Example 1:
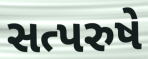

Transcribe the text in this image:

સત્પરુષે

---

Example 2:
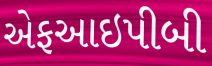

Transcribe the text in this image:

એફઆઇપીબી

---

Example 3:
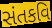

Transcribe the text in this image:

સંતકવિ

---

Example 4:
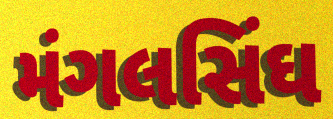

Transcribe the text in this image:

મંગલસિંઘ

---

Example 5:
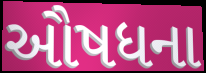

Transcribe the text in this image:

ઔષધના